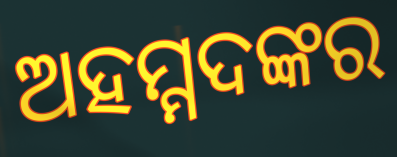
ଅହମ୍ମଦଙ୍କର